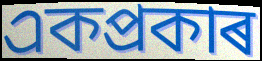
একপ্ৰকাৰ